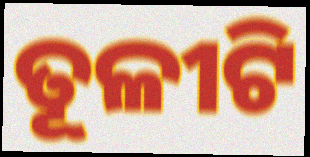
ତୂଳୀଟି